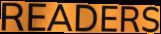
READERS